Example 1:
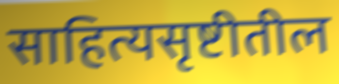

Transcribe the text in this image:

साहित्यसृष्टीतील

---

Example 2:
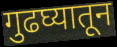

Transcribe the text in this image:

गुढघ्यातून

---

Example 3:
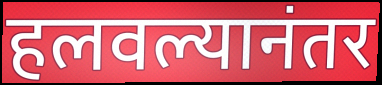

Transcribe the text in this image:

हलवल्यानंतर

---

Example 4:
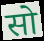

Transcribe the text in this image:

सो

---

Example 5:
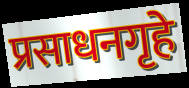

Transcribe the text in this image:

प्रसाधनगृहे